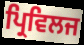
ਪ੍ਰਿਵਿਲਜ